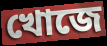
খোজে